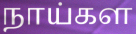
நாய்கள